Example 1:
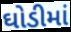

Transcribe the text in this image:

ઘોડીમાં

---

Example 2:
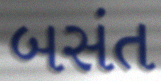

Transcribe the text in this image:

બસંત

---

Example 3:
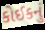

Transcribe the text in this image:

કોઈકનું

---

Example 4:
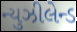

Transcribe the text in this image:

ન્યુઝીલેન્ડ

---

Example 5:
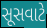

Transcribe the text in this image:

સૂસવાટે